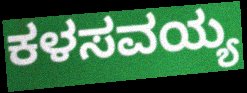
ಕಳಸವಯ್ಯ